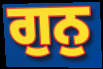
ਗੁਨੁ